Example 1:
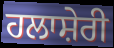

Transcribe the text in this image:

ਹਲਾਸ਼ੇਰੀ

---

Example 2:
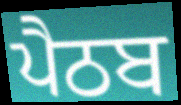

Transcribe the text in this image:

ਪੈਠਬ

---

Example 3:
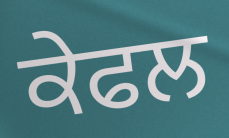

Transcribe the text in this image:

ਕੇਫਲ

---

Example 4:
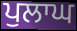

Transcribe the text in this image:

ਪੁਲਾਘ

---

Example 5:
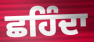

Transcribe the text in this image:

ਛਹਿੰਦਾ